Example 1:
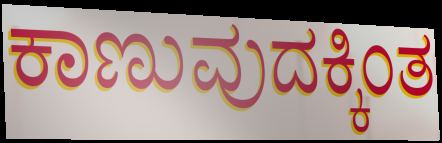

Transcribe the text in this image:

ಕಾಣುವುದಕ್ಕಿಂತ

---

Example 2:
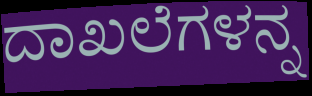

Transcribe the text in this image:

ದಾಖಲೆಗಳನ್ನ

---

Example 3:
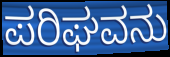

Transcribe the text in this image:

ಪರಿಘವನು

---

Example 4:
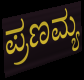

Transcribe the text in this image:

ಪ್ರಣಮ್ಯ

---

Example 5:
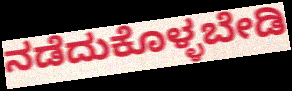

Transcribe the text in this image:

ನಡೆದುಕೊಳ್ಳಬೇಡಿ